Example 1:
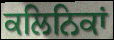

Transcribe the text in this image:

ਕਲਿਨਿਕਾਂ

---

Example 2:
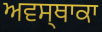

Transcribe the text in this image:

ਅਵਸ੍ਥਾਕਾ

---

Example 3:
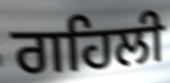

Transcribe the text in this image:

ਗਹਿਲੀ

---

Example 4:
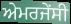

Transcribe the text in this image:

ਅੇਮਰਜੇਂਸੀ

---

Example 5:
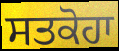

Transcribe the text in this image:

ਸਤਕੋਹਾ